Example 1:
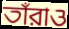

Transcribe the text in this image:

তাঁরাও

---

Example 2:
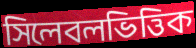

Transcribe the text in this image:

সিলেবলভিত্তিক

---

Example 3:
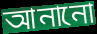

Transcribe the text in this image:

আনানো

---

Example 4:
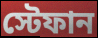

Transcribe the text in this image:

স্টেফান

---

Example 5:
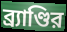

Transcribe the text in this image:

ব্র্যাণ্ডির